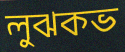
লুঝকভ